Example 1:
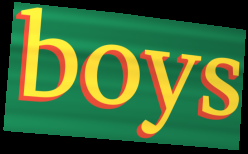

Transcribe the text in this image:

boys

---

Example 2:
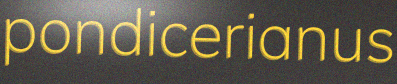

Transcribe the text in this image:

pondicerianus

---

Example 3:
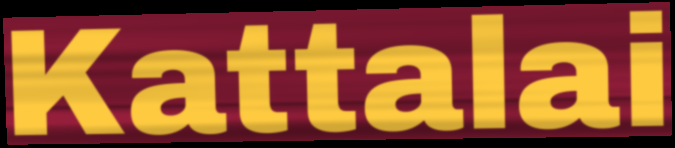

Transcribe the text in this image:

Kattalai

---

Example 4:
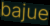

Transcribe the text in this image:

bajue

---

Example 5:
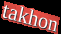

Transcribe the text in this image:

takhon